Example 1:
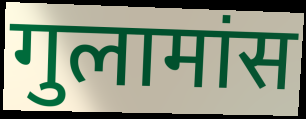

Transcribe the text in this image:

गुलामांस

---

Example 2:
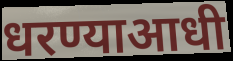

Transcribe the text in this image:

धरण्याआधी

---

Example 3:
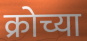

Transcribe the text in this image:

क्रोच्या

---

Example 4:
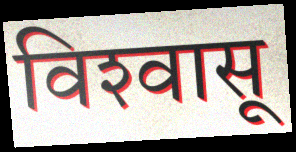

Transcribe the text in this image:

विश्वासू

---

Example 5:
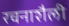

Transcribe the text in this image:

रचनाशैली